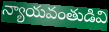
న్యాయవంతుడివి